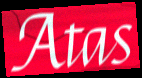
Atas